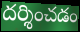
దర్శించడం